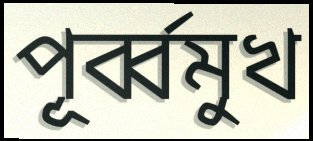
পূর্ব্বমুখ